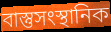
বাস্তুসংস্থানিক